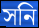
সনি